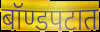
बॉण्डपटात